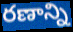
రణాన్ని